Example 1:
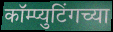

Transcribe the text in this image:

कॉम्प्युटिंगच्या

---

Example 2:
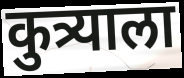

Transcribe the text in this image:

कुत्र्याला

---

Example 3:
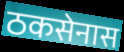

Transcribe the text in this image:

ठकसेनास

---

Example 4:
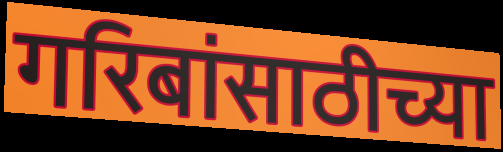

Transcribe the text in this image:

गरिबांसाठीच्या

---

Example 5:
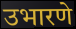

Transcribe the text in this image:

उभारणे